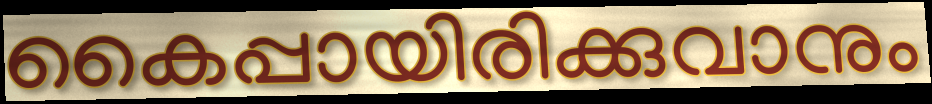
കൈപ്പായിരിക്കുവാനും